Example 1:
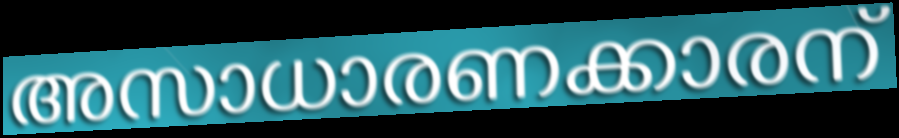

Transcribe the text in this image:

അസാധാരണക്കാരന്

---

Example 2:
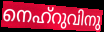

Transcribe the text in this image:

നെഹ്റുവിനു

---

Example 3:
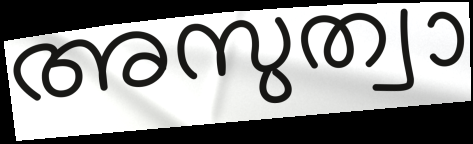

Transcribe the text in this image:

അസുത്വാ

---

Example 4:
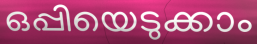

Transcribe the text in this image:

ഒപ്പിയെടുക്കാം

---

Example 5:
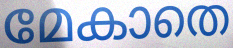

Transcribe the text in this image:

മേകാതെ